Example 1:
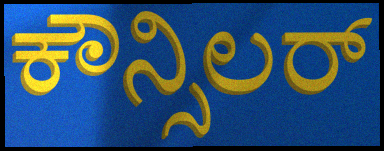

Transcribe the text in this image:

ಕೌನ್ಸಿಲರ್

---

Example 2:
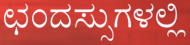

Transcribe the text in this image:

ಛಂದಸ್ಸುಗಳಲ್ಲಿ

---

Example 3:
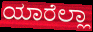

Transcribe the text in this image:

ಯಾರೆಲ್ಲಾ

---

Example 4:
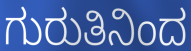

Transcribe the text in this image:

ಗುರುತಿನಿಂದ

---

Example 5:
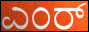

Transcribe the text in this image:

ಎಂರ್